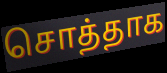
சொத்தாக